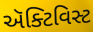
ઍક્ટિવિસ્ટ